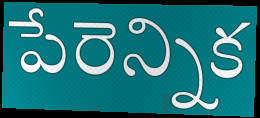
పేరెన్నిక